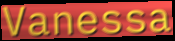
Vanessa